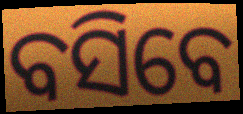
ବସିବେ